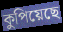
কুপিয়েছে